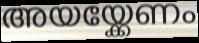
അയയ്ക്കേണം